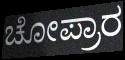
ಚೋಪ್ರಾರ